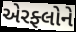
એરફ્લોને